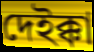
দেইক্কা